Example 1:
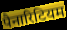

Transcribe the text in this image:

पैनारिटियम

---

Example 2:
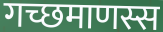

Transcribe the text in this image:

गच्छमाणस्स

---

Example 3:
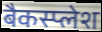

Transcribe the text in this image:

बैकस्प्लेश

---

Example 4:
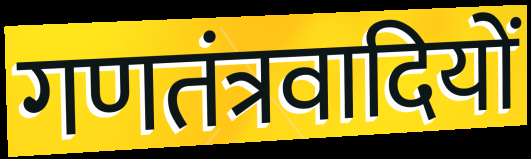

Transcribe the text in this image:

गणतंत्रवादियों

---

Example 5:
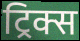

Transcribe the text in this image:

ट्रिक्स